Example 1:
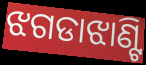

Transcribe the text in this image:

ଝଗଡାଝାଣ୍ଟି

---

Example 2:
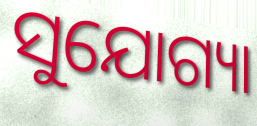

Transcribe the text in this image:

ସୁଯୋଗ୍ୟା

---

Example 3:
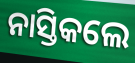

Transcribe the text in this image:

ନାସ୍ତିକଲେ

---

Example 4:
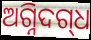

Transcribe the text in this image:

ଅଗ୍ନିଦଗ୍‌ଧ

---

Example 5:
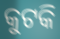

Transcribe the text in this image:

କୁଟକି